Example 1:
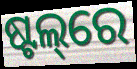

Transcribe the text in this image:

ଷ୍ଟଲ୍‌ରେ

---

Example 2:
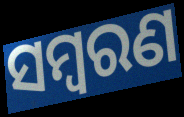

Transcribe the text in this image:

ସମ୍ୱରଣ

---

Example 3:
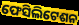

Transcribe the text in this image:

ଫେସିଲିଟେଶନ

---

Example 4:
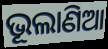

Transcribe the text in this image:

ଭୂଲାଣିଆ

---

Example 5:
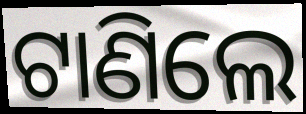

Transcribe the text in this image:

ଟାଣିଲେ